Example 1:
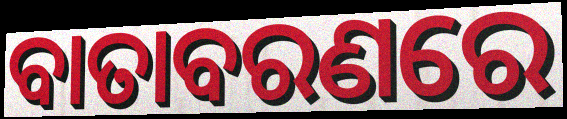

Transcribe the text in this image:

ବାତାବରଣରେ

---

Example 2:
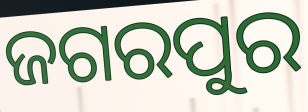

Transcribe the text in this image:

ଜଗରପୁର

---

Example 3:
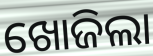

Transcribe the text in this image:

ଖୋଜିଲା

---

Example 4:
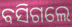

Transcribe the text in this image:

ବସିଗଲେ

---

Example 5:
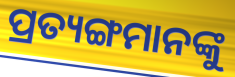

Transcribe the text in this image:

ପ୍ରତ୍ୟଙ୍ଗମାନଙ୍କୁ